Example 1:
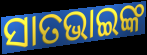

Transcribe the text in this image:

ସାତଭାଇଙ୍କ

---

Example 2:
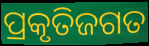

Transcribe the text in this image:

ପ୍ରକୃତିଜଗତ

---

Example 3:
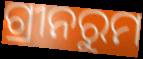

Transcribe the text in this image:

ଗ୍ରୀନରୁମ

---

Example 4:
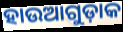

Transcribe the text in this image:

ହାଉଆଗୁଡ଼ାକ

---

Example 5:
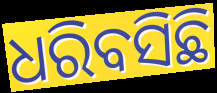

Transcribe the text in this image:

ଧରିବସିଛି